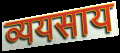
व्ययसाय